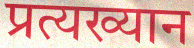
प्रत्यख्यान